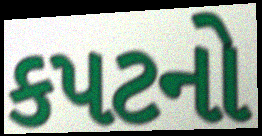
કપટનો